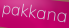
pakkana